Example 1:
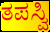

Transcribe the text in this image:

ತಪಸ್ವಿ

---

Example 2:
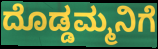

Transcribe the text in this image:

ದೊಡ್ಡಮ್ಮನಿಗೆ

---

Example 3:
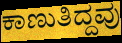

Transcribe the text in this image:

ಕಾಣುತಿದ್ದವು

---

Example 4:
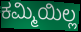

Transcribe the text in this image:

ಕಮ್ಮಿಯಿಲ್ಲ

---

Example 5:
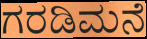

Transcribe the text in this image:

ಗರಡಿಮನೆ